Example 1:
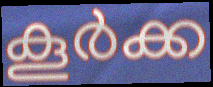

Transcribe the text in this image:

കൂർക്ക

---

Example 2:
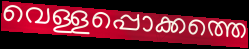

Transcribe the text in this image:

വെള്ളപ്പൊക്കത്തെ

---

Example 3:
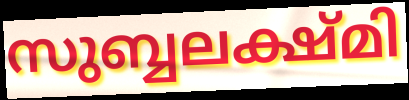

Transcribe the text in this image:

സുബ്ബലക്ഷ്മി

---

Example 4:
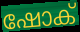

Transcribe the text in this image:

ഷോക്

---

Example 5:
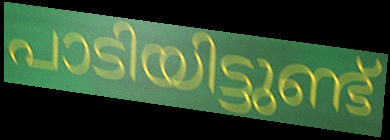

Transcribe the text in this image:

പാടിയിട്ടുണ്ട്